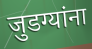
जुडग्यांना